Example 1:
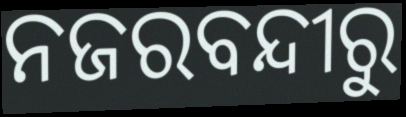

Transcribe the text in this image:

ନଜରବନ୍ଦୀରୁ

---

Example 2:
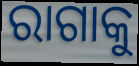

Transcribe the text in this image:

ରାଗାକୁ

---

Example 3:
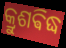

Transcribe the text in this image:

କ୍ରୁଶଵିଦ୍ଧ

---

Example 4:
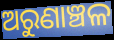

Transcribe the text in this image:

ଅରୁଣାଞ୍ଚଳ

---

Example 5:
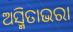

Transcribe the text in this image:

ଅସ୍ମିତାଭରା